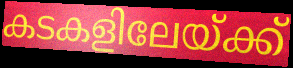
കടകളിലേയ്ക്ക്